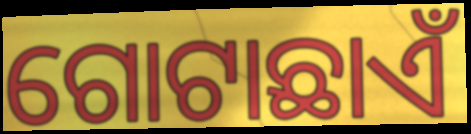
ଗୋଟାଛାଏଁ